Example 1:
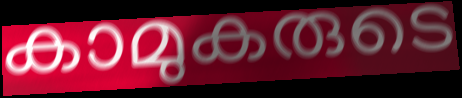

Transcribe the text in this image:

കാമുകരുടെ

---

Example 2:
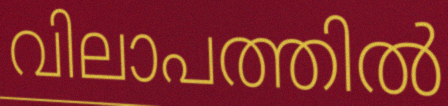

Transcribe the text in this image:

വിലാപത്തിൽ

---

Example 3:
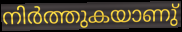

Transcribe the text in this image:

നിർത്തുകയാണു്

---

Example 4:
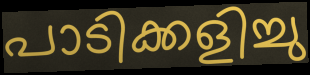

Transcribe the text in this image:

പാടിക്കളിച്ചു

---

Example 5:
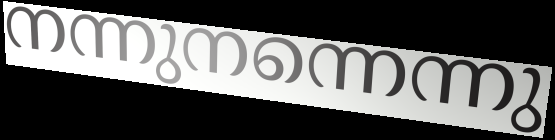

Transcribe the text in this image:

നന്നുനന്നെന്നു